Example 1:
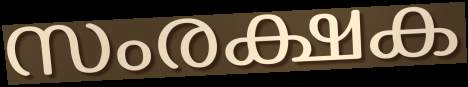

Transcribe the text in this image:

സംരക്ഷക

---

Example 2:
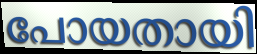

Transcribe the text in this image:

പോയതായി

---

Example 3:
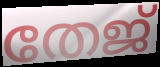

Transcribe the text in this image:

തേജ്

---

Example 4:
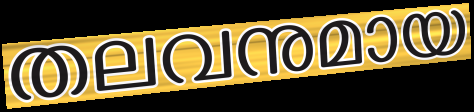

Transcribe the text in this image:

തലവനുമായ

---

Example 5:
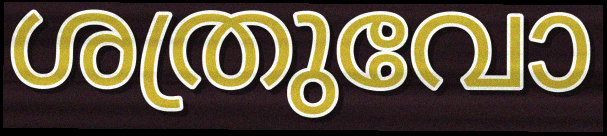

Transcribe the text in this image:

ശത്രുവോ